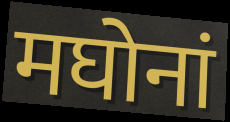
मघोनां